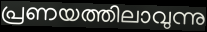
പ്രണയത്തിലാവുന്നു